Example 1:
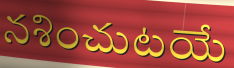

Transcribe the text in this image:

నశించుటయే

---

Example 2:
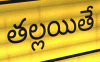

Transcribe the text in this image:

తల్లయితే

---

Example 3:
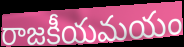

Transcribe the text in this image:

రాజకీయమయం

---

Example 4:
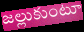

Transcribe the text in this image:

జల్లుకుంటూ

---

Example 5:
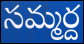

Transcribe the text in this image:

సమ్మర్ద